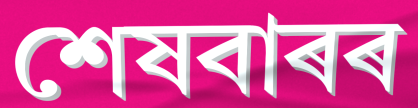
শেষবাৰৰ